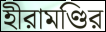
হীরামণ্ডির